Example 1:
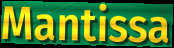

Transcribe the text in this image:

Mantissa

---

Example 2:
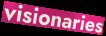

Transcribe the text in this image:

visionaries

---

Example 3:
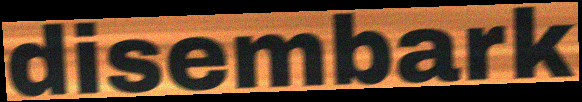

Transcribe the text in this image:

disembark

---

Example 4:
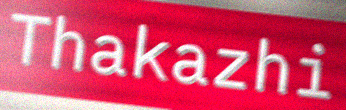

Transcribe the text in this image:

Thakazhi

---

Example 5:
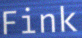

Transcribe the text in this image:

Fink